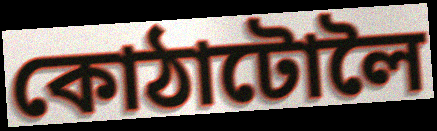
কোঠাটোলৈ